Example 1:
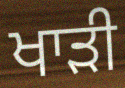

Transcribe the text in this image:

ਖਾਡ਼ੀ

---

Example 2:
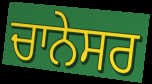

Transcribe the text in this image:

ਚਾਨੇਸਰ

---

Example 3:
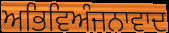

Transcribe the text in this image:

ਅਭਿਵਿਅੰਜਨਾਵਾਦ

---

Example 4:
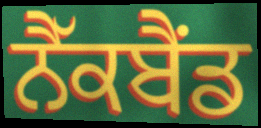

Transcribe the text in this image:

ਨੈੱਕਬੈਂਡ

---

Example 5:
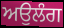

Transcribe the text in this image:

ਅਉਲੰਗ